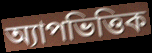
অ্যাপভিত্তিক